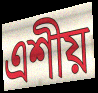
এশীয়